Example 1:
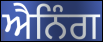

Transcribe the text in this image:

ਐਨਿੰਗ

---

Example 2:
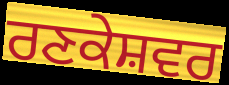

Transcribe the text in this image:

ਰਣਕੇਸ਼ਵਰ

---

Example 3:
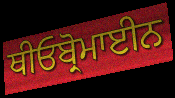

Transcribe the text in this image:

ਥੀਓਬ੍ਰੋਮਾਈਨ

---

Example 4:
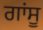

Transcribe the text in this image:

ਗਾਂਸੂ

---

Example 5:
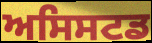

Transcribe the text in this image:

ਅਸਿਸਟਡ